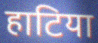
हाटिया